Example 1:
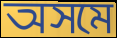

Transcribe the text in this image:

অসমে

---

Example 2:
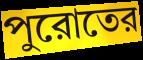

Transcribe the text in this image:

পুরোতের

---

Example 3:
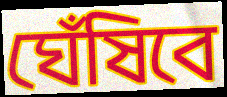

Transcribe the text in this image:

ঘেঁষিবে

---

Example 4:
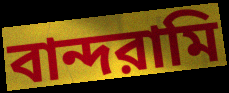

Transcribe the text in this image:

বান্দরামি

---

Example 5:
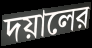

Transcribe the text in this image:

দয়ালের